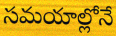
సమయాల్లోనే